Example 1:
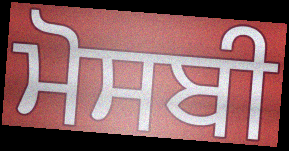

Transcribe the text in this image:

ਮੋਸਬੀ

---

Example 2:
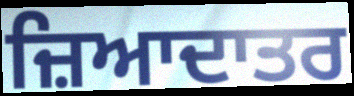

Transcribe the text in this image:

ਜ਼ਿਆਦਾਤਰ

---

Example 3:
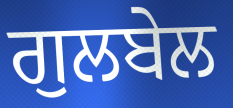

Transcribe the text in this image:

ਗੁਲਬੇਲ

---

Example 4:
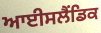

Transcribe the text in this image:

ਆਈਸਲੈਂਡਿਕ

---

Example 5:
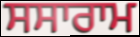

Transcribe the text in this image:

ਸਸਾਰਾਮ